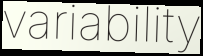
variability